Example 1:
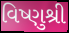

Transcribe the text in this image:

વિષ્ણુશ્રી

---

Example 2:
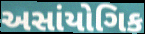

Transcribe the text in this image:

અસાંયોગિક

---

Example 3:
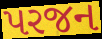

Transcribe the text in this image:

પરજન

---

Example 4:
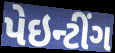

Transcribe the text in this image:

પેઇન્ટીંગ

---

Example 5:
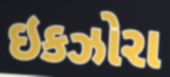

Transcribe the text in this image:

ઇકઝોરા